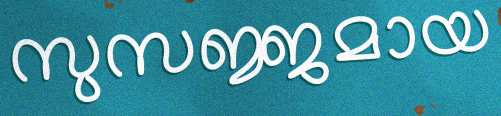
സുസജ്ജമായ